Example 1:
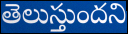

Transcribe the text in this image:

తెలుస్తుందని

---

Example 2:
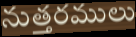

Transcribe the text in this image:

నుత్తరములు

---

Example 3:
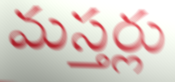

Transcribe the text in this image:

మస్తర్లు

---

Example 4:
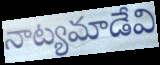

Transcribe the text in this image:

నాట్యమాడేవి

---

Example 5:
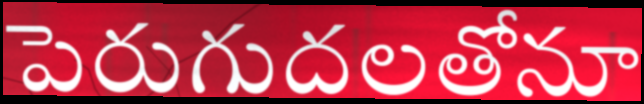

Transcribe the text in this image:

పెరుగుదలతోనూ